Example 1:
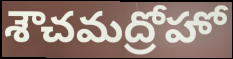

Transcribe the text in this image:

శౌచమద్రోహో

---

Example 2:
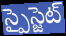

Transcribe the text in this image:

స్పైస్జెట్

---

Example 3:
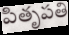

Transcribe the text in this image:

పితృపతి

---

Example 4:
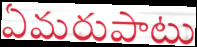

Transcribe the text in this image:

ఏమరుపాటు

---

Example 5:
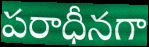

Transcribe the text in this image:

పరాధీనగా